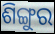
ଶିଙ୍ଗୁର